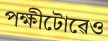
পক্ষীটোৱেও